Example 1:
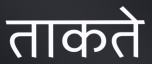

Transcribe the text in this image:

ताकते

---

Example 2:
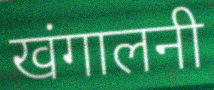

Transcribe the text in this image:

खंगालनी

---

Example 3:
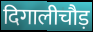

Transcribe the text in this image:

दिगालीचौड़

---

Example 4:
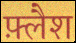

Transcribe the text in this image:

फ़्लैश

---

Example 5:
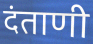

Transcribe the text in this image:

दंताणी